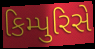
કિમ્પુરિસે